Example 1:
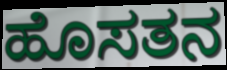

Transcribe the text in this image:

ಹೊಸತನ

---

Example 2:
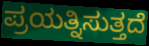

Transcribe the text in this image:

ಪ್ರಯತ್ನಿಸುತ್ತದೆ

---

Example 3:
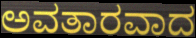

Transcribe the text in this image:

ಅವತಾರವಾದ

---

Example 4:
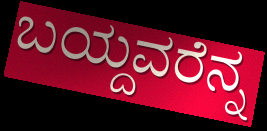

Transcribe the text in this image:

ಬಯ್ದವರೆನ್ನ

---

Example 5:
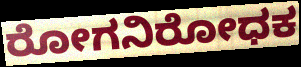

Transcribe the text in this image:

ರೋಗನಿರೋಧಕ